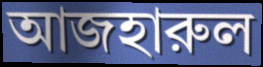
আজহারুল